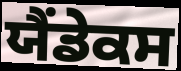
ਯੈਂਡੇਕਸ